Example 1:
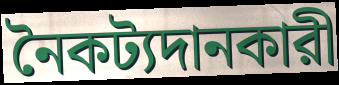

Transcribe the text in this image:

নৈকট্যদানকারী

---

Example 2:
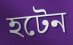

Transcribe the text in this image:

হটেন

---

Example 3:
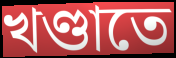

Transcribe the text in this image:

খণ্ডাতে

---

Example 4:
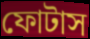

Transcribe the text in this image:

ফোটাস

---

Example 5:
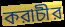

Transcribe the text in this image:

করাচীর